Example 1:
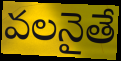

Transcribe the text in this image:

వలనైతే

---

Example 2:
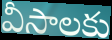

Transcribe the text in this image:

వీసాలకు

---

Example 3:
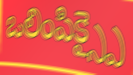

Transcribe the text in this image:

ఒలింపిక్స్పై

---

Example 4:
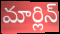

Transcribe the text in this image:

మార్లిన్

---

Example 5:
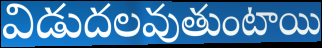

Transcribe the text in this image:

విడుదలవుతుంటాయి